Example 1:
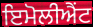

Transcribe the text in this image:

ਇਮੋਲੀਐਂਟ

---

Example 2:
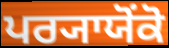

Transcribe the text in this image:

ਪਰ੍ਯਾਯੋਂਕੋ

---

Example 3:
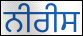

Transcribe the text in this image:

ਨੀਰੀਸ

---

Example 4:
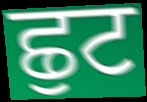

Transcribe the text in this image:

ਛੁਟ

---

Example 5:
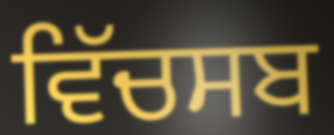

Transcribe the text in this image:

ਵਿੱਚਸਬ